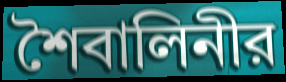
শৈবালিনীর